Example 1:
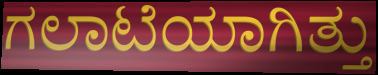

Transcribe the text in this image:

ಗಲಾಟೆಯಾಗಿತ್ತು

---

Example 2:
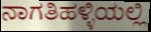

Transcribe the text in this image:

ನಾಗತಿಹಳ್ಳಿಯಲ್ಲಿ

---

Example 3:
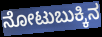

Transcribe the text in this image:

ನೋಟುಬುಕ್ಕಿನ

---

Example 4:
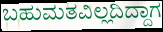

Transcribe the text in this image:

ಬಹುಮತವಿಲ್ಲದಿದ್ದಾಗ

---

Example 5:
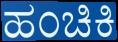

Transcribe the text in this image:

ಹಂಚಿಕಿ